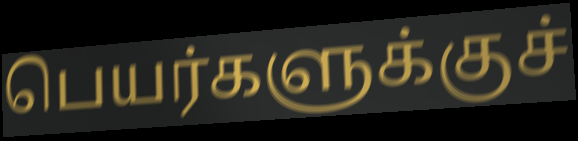
பெயர்களுக்குச்